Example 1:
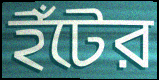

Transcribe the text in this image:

ইঁটের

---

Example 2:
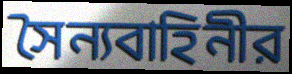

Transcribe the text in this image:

সৈন্যবাহিনীর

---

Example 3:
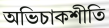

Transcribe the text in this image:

অভিচাকশীতি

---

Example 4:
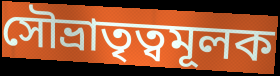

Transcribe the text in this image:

সৌভ্রাতৃত্বমূলক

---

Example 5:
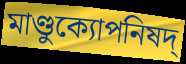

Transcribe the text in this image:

মাণ্ডুক্যোপনিষদ্